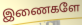
இணைகளே